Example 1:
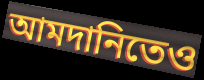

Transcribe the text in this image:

আমদানিতেও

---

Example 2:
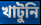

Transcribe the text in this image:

খাটুনি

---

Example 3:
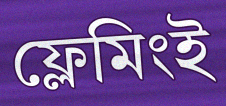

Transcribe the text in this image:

ফ্লেমিংই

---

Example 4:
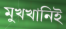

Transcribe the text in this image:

মুখখানিই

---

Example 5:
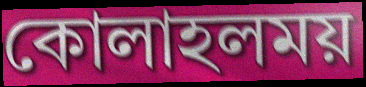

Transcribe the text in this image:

কোলাহলময়